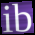
ib